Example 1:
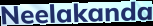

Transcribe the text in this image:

Neelakanda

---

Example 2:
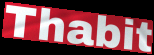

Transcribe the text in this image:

Thabit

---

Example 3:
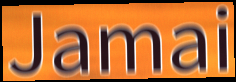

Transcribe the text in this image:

Jamai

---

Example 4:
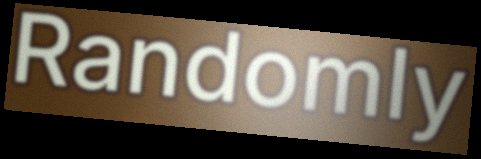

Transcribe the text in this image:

Randomly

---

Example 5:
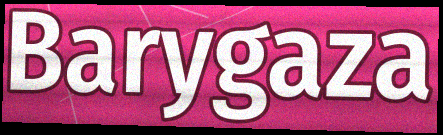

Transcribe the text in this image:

Barygaza